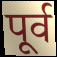
पूर्व